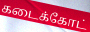
கடைக்கோட்